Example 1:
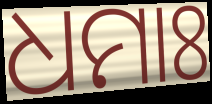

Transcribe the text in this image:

ଧମାଃ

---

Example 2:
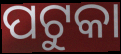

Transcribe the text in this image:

ପଟୁକା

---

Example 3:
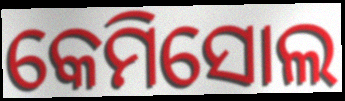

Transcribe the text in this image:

କେମିସୋଲ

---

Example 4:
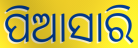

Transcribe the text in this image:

ପିଆସାରି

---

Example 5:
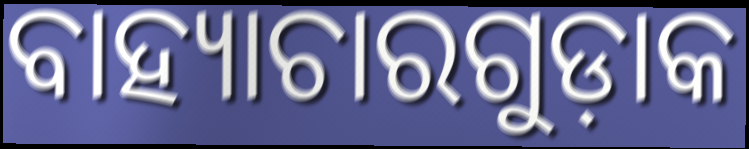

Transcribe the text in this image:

ବାହ୍ୟାଚାରଗୁଡ଼ାକ